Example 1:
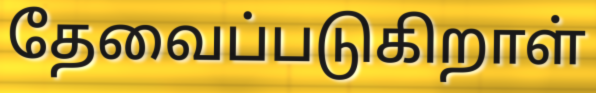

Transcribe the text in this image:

தேவைப்படுகிறாள்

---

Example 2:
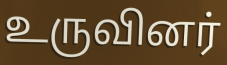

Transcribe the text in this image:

உருவினர்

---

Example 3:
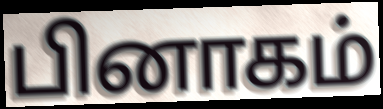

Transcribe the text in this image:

பினாகம்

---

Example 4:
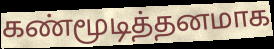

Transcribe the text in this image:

கண்மூடித்தனமாக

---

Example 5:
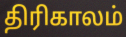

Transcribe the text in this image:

திரிகாலம்